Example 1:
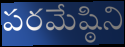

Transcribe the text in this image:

పరమేష్ఠిని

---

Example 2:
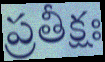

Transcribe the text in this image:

ప్రతీక్షః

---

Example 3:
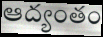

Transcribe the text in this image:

ఆద్యంతం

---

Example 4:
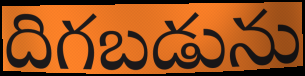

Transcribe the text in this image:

దిగబడును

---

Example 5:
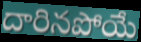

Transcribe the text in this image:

దారినపోయే